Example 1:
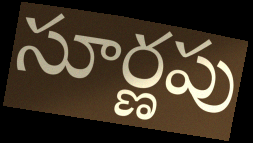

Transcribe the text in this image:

సూర్ణపు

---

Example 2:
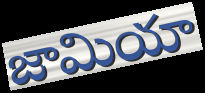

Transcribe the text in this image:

జామియా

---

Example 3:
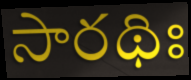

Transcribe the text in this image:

సారథిః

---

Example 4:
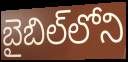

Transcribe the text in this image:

బైబిల్‌లోని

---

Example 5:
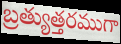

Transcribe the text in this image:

బ్రత్యుత్తరముగా